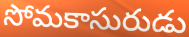
సోమకాసురుడు